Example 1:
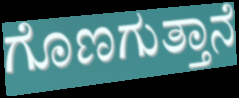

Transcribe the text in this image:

ಗೊಣಗುತ್ತಾನೆ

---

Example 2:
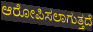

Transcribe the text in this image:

ಆರೋಪಿಸಲಾಗುತ್ತದೆ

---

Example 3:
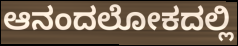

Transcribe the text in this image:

ಆನಂದಲೋಕದಲ್ಲಿ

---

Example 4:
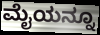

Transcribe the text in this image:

ಮೈಯನ್ನೂ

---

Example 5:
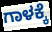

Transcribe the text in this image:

ಗಾಳಕ್ಕೆ